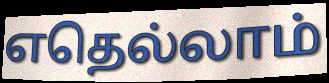
எதெல்லாம்